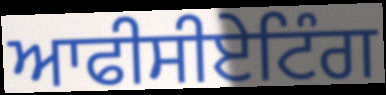
ਆਫੀਸੀਏਟਿੰਗ